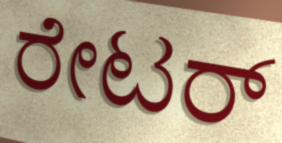
ರೇಟರ್